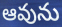
ఆవును